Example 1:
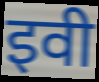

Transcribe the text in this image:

इवी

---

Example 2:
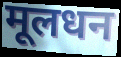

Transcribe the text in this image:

मूलधन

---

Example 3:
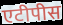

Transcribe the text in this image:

एटीपीस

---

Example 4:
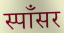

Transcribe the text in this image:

स्पॉंसर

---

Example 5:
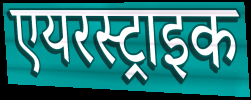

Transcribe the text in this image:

एयरस्ट्राइक